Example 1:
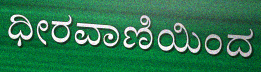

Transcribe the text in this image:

ಧೀರವಾಣಿಯಿಂದ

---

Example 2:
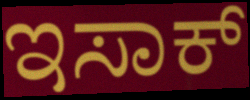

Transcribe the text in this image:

ಇಸಾಕ್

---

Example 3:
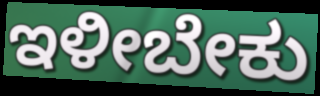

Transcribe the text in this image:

ಇಳೀಬೇಕು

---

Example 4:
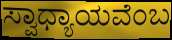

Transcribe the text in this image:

ಸ್ವಾಧ್ಯಾಯವೆಂಬ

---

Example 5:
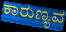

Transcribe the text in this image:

ಕಾರುಣ್ಯವ